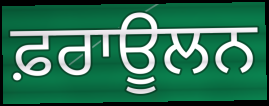
ਫ਼ਰਾਊਲਨ